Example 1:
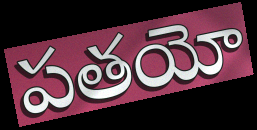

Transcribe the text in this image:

పతయో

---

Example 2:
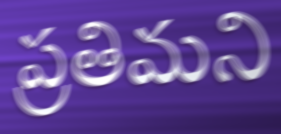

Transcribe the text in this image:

ప్రతిమని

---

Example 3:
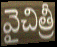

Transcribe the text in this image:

వైచిత్రీ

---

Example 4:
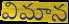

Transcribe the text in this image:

విమాన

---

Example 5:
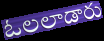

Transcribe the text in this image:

ఓలలాడారు